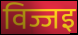
विज्जइ